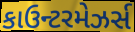
કાઉન્ટરમેઝર્સ